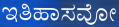
ಇತಿಹಾಸವೋ